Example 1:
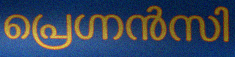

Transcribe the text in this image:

പ്രെഗ്നൻസി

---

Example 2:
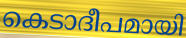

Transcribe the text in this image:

കെടാദീപമായി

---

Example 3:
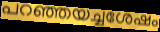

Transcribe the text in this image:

പറഞ്ഞയച്ചശേഷം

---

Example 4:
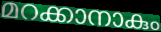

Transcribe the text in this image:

മറക്കാനാകും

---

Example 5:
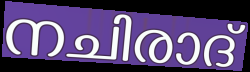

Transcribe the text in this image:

നചിരാദ്